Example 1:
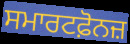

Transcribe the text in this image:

ਸਮਾਰਟਫ਼ੋਨਜ਼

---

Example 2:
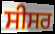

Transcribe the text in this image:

ਸੀਸਰ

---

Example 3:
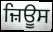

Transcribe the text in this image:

ਜ਼ਿਊਸ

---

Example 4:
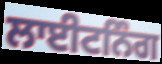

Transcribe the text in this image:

ਲਾਈਟਨਿੰਗ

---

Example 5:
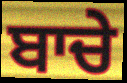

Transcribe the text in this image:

ਬਾਚੇ